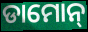
ଡାମୋନ୍